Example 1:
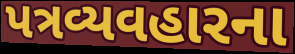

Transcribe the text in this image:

પત્રવ્યવહારના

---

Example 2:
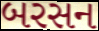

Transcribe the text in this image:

બરસન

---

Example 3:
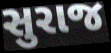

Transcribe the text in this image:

સુરાજ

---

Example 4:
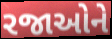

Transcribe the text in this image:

રજાઓને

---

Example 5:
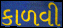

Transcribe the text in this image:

કાળવી